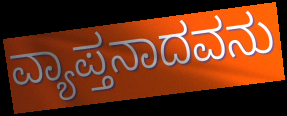
ವ್ಯಾಪ್ತನಾದವನು